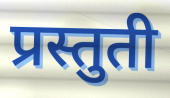
प्रस्तुती